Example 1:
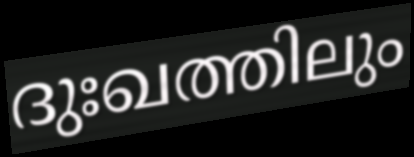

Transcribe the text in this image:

ദുഃഖത്തിലും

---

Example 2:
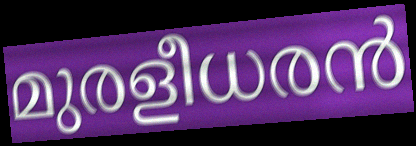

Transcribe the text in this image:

മുരളീധരൻ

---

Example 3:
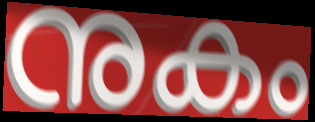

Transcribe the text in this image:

നുകം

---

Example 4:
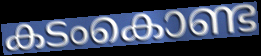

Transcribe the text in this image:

കടംകൊണ്ട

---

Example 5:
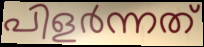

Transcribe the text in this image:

പിളർന്നത്